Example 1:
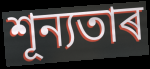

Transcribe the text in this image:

শূন্যতাৰ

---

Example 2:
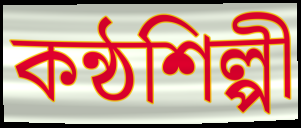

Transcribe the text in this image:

কন্ঠশিল্পী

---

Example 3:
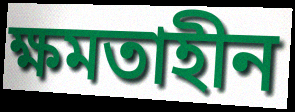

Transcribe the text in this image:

ক্ষমতাহীন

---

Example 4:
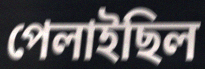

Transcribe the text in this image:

পেলাইছিল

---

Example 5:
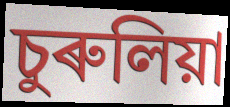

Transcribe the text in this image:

চুৰুলিয়া